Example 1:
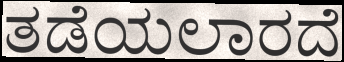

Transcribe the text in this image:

ತಡೆಯಲಾರದೆ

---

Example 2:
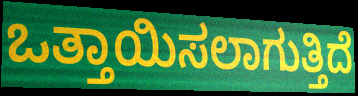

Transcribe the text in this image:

ಒತ್ತಾಯಿಸಲಾಗುತ್ತಿದೆ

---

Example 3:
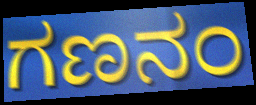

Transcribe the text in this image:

ಗಣನಂ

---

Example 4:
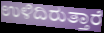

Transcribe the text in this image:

ಉಳಿದಿರುತ್ತಾರೆ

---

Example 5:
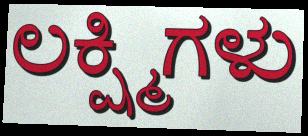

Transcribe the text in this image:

ಲಕ್ಷ್ಮಿಗಳು